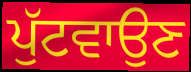
ਪੁੱਟਵਾਉਣ